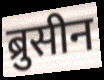
ब्रुसीन